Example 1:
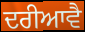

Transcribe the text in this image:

ਦਰੀਆਵੈ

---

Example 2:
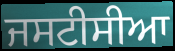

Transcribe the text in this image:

ਜਸਟੀਸੀਆ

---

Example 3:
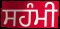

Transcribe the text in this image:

ਸਹੰਮੀ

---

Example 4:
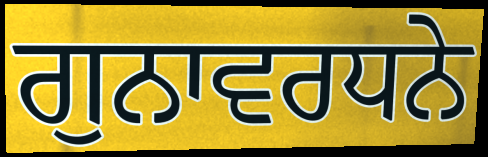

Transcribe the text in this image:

ਗੁਨਾਵਰਧਨੇ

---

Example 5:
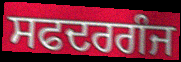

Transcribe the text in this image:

ਸਫਦਰਗੰਜ